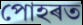
পোহৰত